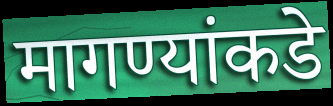
मागण्यांकडे